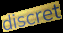
discret